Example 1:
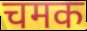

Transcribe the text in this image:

चमक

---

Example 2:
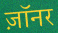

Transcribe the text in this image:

ज़ॉनर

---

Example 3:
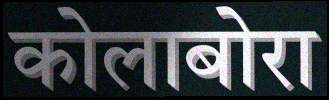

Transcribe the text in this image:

कोलाबोरा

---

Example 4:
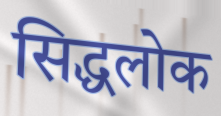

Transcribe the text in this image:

सिद्धलोक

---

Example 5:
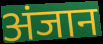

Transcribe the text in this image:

अंजान